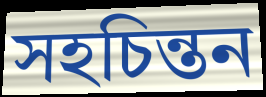
সহচিন্তন